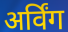
अर्विंग